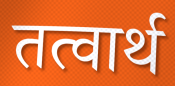
तत्वार्थ